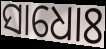
ସାଧୋଃ